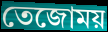
তেজোময়